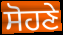
ਸੋਹਣੇ